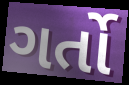
ગર્તો